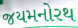
જયમનોરથ